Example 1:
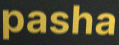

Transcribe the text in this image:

pasha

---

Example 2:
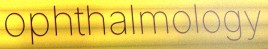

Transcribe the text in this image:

ophthalmology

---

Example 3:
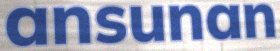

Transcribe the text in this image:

ansunan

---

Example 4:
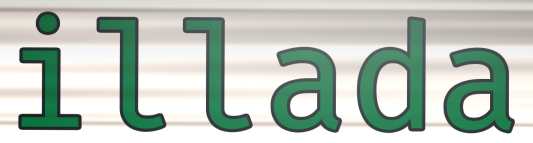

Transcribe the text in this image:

illada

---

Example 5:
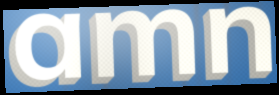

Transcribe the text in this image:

amn